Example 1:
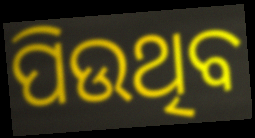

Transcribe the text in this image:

ପିଉଥିବ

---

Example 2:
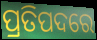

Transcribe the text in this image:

ପ୍ରତିପଦରେ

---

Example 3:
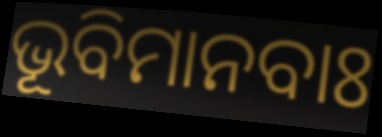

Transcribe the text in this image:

ଭୂବିମାନବାଃ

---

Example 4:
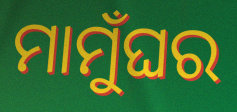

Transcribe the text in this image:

ମାମୁଁଘର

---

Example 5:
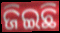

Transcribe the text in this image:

ଜିଇଛି